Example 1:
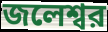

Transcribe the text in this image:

জলেশ্বর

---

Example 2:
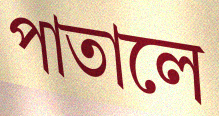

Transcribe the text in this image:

পাতালে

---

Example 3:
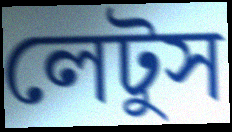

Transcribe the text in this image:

লেটুস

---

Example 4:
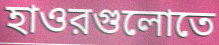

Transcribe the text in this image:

হাওরগুলোতে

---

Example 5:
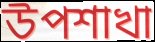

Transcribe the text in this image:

উপশাখা